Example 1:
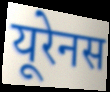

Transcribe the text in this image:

यूरेनस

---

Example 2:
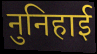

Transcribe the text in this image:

नुनिहाई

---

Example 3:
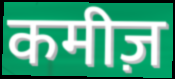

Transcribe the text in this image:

कमीज़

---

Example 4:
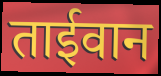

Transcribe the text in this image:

ताईवान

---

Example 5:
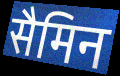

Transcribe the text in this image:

सैमिन